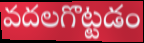
వదలగొట్టడం